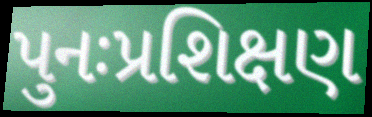
પુનઃપ્રશિક્ષણ